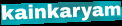
kainkaryam